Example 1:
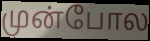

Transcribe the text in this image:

முன்போல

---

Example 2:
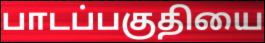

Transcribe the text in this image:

பாடப்பகுதியை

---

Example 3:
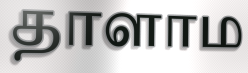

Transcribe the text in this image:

தாளாம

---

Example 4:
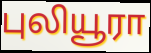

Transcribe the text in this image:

புலியூரா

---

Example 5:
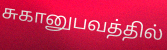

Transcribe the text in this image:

சுகானுபவத்தில்